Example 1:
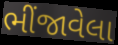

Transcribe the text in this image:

ભીંજાવેલા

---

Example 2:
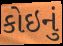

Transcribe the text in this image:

કોઇનું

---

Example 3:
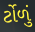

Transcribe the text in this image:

ર્ટોળું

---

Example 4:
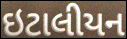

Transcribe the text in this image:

ઇટાલીયન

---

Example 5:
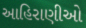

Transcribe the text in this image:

આહિરાણીઓ